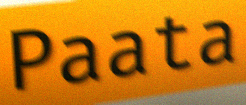
Paata